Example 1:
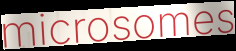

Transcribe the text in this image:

microsomes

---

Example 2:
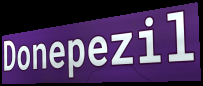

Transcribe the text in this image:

Donepezil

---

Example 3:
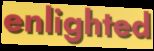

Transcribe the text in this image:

enlighted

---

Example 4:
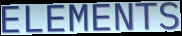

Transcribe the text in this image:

ELEMENTS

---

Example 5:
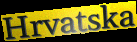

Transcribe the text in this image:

Hrvatska